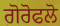
ਗੋਰੋਫਲੋ